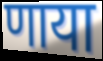
णाया